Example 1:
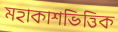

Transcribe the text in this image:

মহাকাশভিত্তিক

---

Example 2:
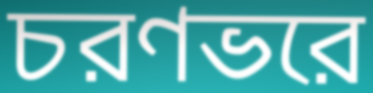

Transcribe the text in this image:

চরণভরে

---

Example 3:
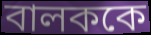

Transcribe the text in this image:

বালককে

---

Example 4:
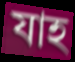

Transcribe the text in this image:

যাহ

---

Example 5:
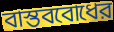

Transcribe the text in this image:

বাস্তববোধের